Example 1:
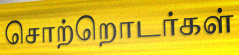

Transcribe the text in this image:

சொற்றொடர்கள்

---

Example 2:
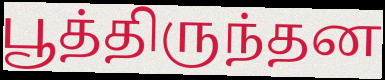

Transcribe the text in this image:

பூத்திருந்தன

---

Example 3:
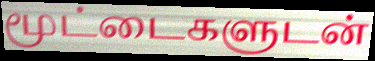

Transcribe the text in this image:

மூட்டைகளுடன்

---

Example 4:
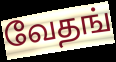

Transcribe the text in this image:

வேதங்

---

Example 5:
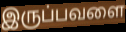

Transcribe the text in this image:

இருப்பவளை